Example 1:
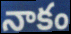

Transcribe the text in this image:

నాకం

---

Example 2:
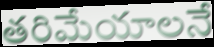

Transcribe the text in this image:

తరిమేయాలనే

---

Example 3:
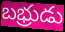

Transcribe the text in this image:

బభ్రుడు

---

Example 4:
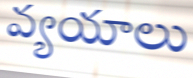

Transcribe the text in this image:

వ్యయాలు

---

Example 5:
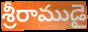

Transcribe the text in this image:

శ్రీరాముడై